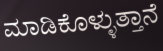
ಮಾಡಿಕೊಳ್ಳುತ್ತಾನೆ